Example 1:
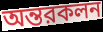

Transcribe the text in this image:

অন্তরকলন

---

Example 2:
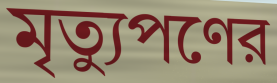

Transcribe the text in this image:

মৃত্যুপণের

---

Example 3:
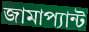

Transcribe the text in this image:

জামাপ্যান্ট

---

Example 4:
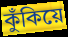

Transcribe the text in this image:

কুঁকিয়ে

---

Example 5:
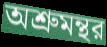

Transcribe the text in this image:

অশ্রুমন্থর